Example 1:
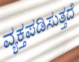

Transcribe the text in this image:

ವ್ಯಕ್ತಪಡಿಸುತ್ತದೆ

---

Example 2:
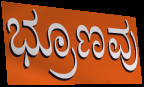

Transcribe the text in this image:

ಭ್ರೂಣವು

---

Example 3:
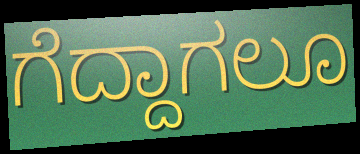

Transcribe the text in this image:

ಗೆದ್ದಾಗಲೂ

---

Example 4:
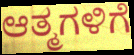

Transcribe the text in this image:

ಆತ್ಮಗಳಿಗೆ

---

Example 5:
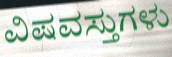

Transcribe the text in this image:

ವಿಷವಸ್ತುಗಳು